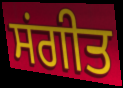
ਸਂਗੀਤ